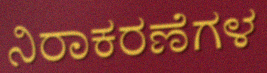
ನಿರಾಕರಣೆಗಳ